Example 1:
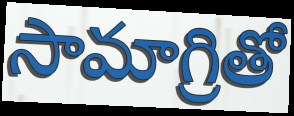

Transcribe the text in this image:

సామాగ్రితో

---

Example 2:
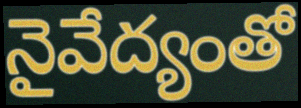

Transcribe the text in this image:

నైవేద్యంతో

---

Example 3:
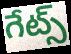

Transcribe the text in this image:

గేట్స్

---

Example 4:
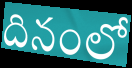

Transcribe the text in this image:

దినంలో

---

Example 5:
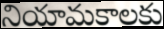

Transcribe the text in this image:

నియామకాలకు